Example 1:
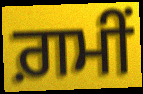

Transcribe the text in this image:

ਗ਼ਮੀਂ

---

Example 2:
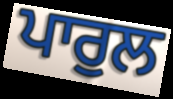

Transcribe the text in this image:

ਪਾਰੁਲ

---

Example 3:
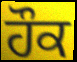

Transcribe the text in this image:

ਹੌਕ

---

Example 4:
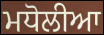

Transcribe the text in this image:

ਮਧੋਲੀਆ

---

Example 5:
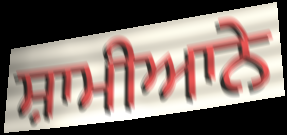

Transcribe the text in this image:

ਸ਼ਾਮੀਆਨੇ